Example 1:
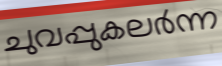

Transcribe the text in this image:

ചുവപ്പുകലർന്ന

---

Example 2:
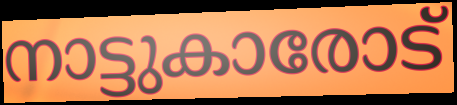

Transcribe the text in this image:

നാട്ടുകാരോട്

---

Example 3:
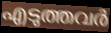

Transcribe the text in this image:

എടുത്തവർ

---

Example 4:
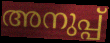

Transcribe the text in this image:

അനുപ്പ്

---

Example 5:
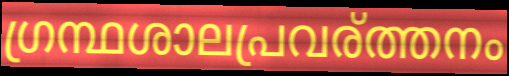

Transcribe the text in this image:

ഗ്രന്ഥശാലപ്രവര്ത്തനം